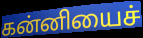
கன்னியைச்